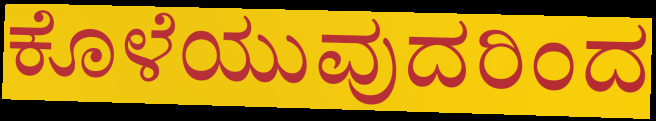
ಕೊಳೆಯುವುದರಿಂದ